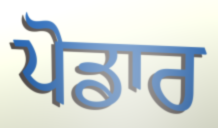
ਪੋਡਾਰ